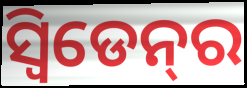
ସ୍ୱିଡେନ୍‍ର